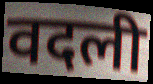
वदली